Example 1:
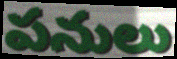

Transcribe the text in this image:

పనులు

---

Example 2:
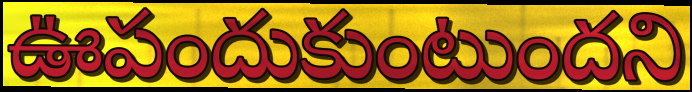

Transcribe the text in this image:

ఊపందుకుంటుందని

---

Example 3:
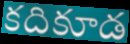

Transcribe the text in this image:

కదికూడ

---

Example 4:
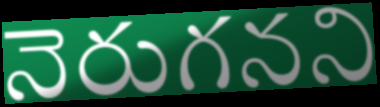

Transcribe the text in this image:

నెరుగనని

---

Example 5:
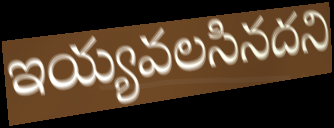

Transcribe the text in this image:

ఇయ్యవలసినదని